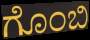
ಗೊಂಬಿ